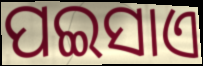
ପଇସାଏ